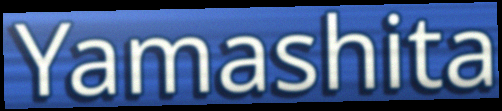
Yamashita